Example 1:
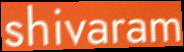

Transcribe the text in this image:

shivaram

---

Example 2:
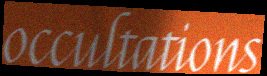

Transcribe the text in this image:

occultations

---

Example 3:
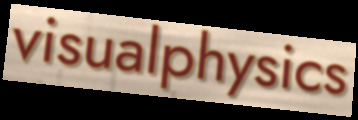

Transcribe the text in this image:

visualphysics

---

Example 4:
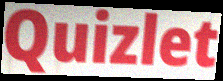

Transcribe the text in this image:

Quizlet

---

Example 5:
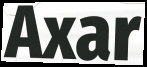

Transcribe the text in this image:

Axar